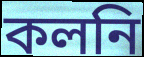
কলনি